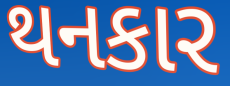
થનકાર